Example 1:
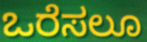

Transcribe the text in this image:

ಒರೆಸಲೂ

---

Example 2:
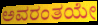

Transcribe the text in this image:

ಅವರಂತಯೇ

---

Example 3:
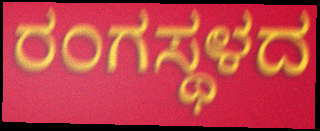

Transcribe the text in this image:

ರಂಗಸ್ಥಳದ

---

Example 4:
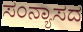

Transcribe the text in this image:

ಸಂನ್ಯಾಸದ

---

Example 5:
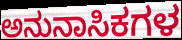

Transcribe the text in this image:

ಅನುನಾಸಿಕಗಳ